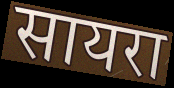
सायरा